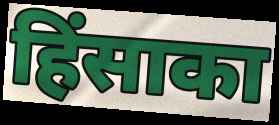
हिंसाका